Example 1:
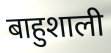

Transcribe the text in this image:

बाहुशाली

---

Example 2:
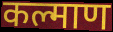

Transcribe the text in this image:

कल्माण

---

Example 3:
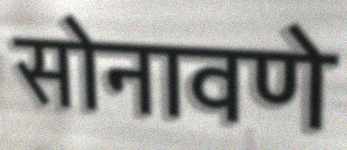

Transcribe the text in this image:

सोनावणे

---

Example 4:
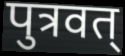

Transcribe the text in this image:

पुत्रवत्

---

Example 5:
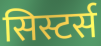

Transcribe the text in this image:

सिस्टर्स